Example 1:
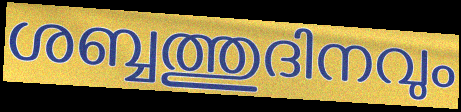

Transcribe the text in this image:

ശബ്ബത്തുദിനവും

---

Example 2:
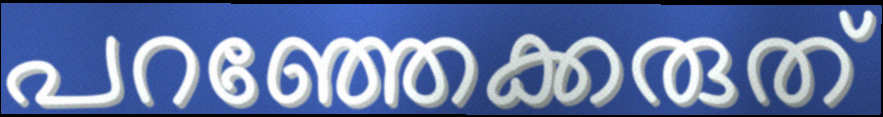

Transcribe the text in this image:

പറഞ്ഞേക്കരുത്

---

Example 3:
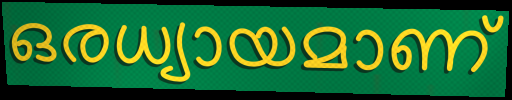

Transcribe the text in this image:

ഒരധ്യായമാണ്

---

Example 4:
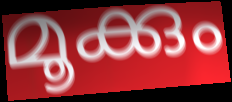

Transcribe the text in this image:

മൂക്കും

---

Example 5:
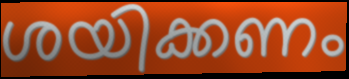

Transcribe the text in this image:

ശയിക്കണം